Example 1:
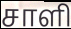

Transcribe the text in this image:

சாளி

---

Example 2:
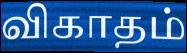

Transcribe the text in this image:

விகாதம்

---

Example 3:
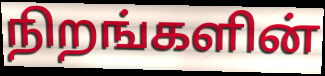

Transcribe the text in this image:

நிறங்களின்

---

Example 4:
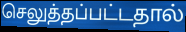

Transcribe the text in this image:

செலுத்தப்பட்டதால்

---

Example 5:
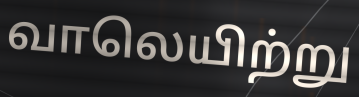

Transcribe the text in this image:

வாலெயிற்று